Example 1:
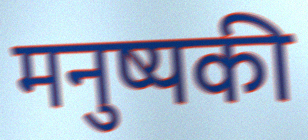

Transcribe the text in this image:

मनुष्यकी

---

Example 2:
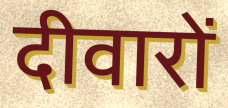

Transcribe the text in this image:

दीवारों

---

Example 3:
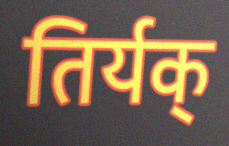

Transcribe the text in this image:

तिर्यक्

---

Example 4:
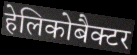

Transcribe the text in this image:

हेलिकोबैक्टर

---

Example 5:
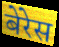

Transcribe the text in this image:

बेरेस